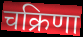
चक्रिणा